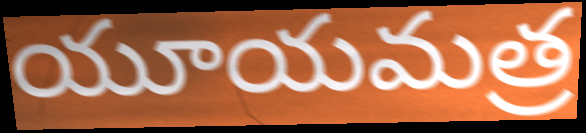
యూయమత్ర